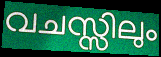
വചസ്സിലും